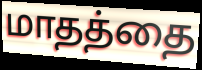
மாதத்தை